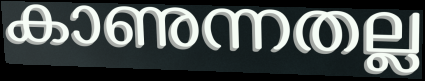
കാണുന്നതല്ല